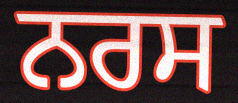
ਨਰਸ